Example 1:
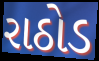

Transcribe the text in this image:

રાઠોડ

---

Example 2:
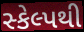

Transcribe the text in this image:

સ્કેલ્પથી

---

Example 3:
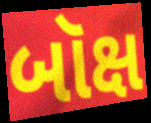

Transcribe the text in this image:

બૉક્ષ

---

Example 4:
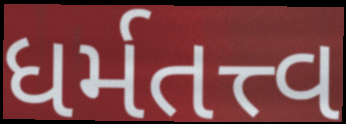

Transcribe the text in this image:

ધર્મતત્ત્વ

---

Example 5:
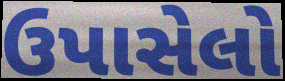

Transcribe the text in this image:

ઉપાસેલો